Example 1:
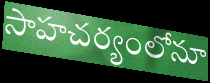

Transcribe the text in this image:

సాహచర్యంలోనూ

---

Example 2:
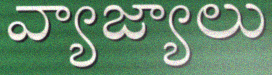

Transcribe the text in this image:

వ్యాజ్యాలు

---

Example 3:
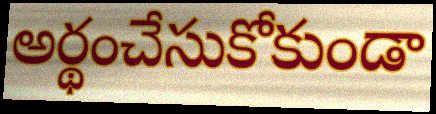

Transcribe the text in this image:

అర్థంచేసుకోకుండా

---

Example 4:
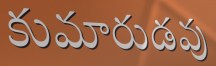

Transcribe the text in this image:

కుమారుడవు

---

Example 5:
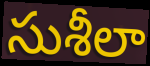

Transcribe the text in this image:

సుశీలా